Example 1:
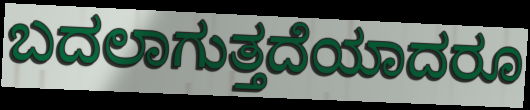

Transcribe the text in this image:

ಬದಲಾಗುತ್ತದೆಯಾದರೂ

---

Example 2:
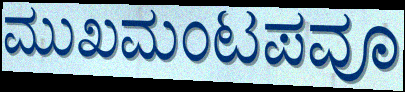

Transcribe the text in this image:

ಮುಖಮಂಟಪವೂ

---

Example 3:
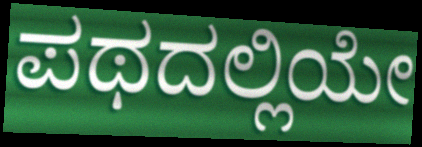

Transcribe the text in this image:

ಪಥದಲ್ಲಿಯೇ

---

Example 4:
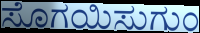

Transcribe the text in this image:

ಸೊಗಯಿಸುಗುಂ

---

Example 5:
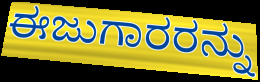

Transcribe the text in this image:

ಈಜುಗಾರರನ್ನು